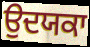
ਉਦਯਕਾ